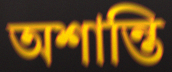
অশান্তি